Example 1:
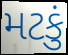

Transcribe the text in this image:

મટકું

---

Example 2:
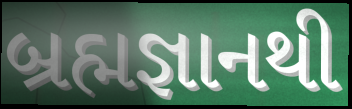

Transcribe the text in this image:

બ્રહ્મજ્ઞાનથી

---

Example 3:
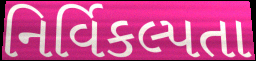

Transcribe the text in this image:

નિર્વિકલ્પતા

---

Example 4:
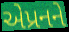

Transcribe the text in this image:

એપ્રનને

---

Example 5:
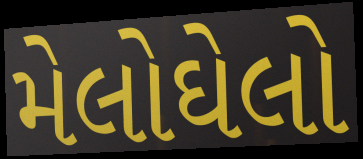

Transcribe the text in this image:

મેલોઘેલો